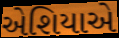
એશિયાએ